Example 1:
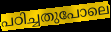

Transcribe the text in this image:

പഠിച്ചതുപോലെ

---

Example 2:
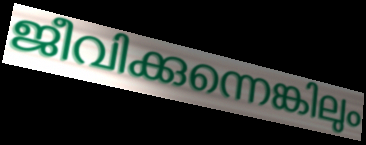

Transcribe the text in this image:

ജീവിക്കുന്നെങ്കിലും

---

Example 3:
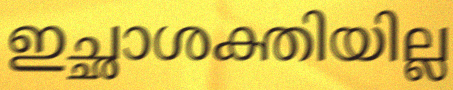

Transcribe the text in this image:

ഇച്ഛാശക്തിയില്ല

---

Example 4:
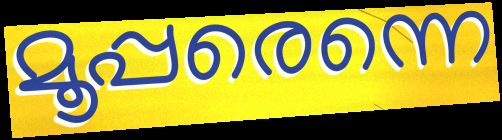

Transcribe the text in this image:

മൂപ്പരെന്നെ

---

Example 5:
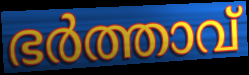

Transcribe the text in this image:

ഭർത്താവ്